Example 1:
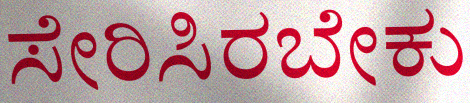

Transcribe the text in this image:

ಸೇರಿಸಿರಬೇಕು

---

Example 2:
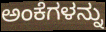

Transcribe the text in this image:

ಅಂಕೆಗಳನ್ನು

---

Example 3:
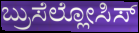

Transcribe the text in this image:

ಬ್ರುಸೆಲ್ಲೋಸಿಸ್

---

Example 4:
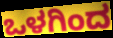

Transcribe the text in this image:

ಒಳಗಿಂದ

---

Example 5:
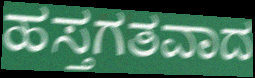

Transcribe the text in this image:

ಹಸ್ತಗತವಾದ